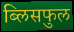
ब्लिसफुल